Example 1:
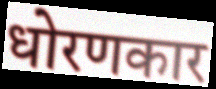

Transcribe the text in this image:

धोरणकार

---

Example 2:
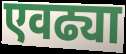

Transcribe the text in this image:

एवढ्या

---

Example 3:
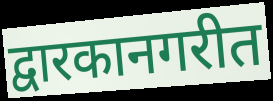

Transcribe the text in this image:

द्वारकानगरीत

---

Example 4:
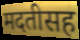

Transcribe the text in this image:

मदतीसह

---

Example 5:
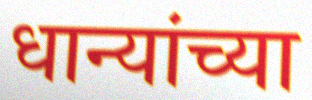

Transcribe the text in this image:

धान्यांच्या